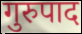
गुरुपाद